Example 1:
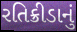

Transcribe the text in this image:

રતિક્રીડાનું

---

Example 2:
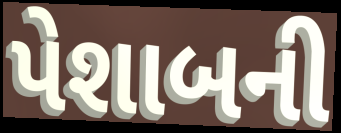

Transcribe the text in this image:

પેશાબની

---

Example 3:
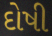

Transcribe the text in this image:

દોષી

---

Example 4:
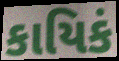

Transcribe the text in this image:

કાયિકં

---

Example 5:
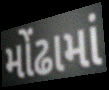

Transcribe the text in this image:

મોંઢામાં